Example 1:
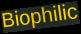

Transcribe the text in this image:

Biophilic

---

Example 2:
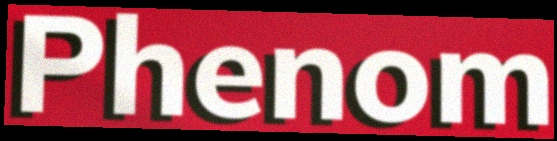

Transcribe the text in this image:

Phenom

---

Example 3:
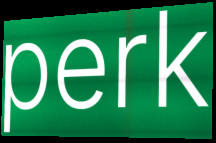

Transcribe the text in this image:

perk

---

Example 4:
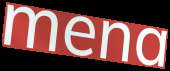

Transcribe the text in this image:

mena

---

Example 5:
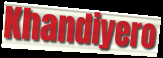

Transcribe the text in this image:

Khandiyero